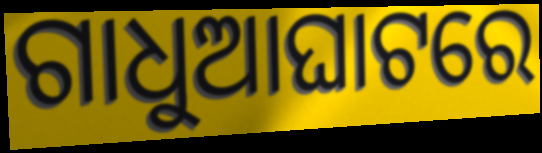
ଗାଧୁଆଘାଟରେ